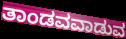
ತಾಂಡವವಾಡುವ